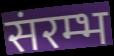
संरम्भ